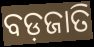
ବଡ଼ଜାତି